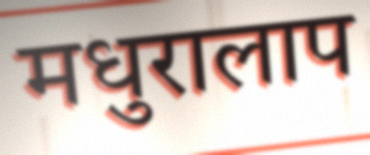
मधुरालाप